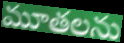
మూతలను